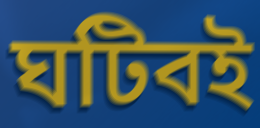
ঘটিবই